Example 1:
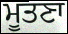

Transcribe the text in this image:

ਮੂਤਣਾ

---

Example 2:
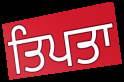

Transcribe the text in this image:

ਤਿਪਤਾ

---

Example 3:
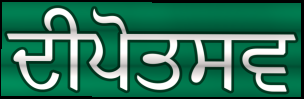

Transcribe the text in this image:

ਦੀਪੋਤਸਵ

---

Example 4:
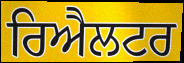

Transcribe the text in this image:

ਰਿਐਲਟਰ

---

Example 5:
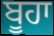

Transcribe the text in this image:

ਬੂਹਾ